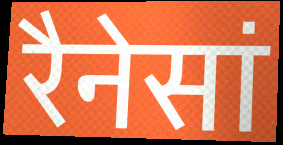
रैनेसां